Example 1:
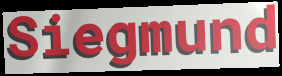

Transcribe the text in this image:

Siegmund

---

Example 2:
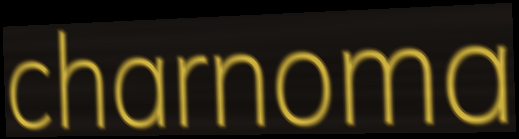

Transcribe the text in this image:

charnoma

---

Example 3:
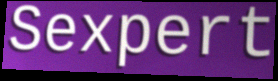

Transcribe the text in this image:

Sexpert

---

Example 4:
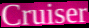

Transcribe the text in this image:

Cruiser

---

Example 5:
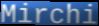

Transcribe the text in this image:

Mirchi